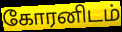
கோரனிடம்